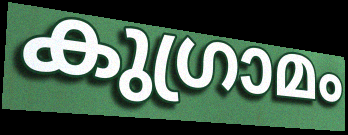
കുഗ്രാമം